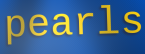
pearls